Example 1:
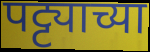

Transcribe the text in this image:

पट्ट्याच्या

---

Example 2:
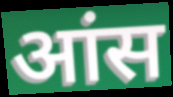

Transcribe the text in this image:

आंस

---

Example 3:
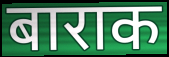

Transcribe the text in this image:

बाराक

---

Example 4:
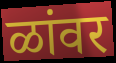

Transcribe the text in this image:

ळांवर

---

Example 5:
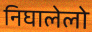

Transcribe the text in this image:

निघालेलो